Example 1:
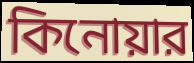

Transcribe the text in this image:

কিনোয়ার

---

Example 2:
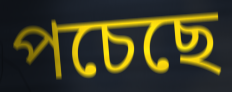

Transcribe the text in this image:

পচেছে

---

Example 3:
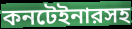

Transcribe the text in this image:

কনটেইনারসহ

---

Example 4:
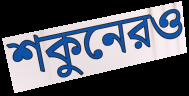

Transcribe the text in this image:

শকুনেরও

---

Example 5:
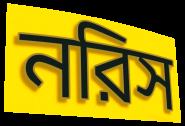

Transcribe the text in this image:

নরিস